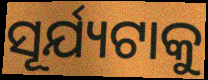
ସୂର୍ଯ୍ୟଟାକୁ